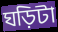
ঘড়িটা